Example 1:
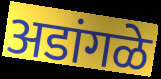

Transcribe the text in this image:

अडांगळे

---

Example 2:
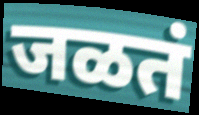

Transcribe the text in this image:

जळतं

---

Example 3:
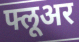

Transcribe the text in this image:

फ्लूअर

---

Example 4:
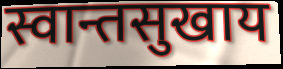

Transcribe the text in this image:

स्वान्तसुखाय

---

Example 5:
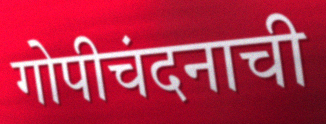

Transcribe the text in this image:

गोपीचंदनाची